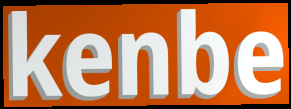
kenbe